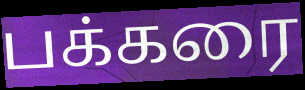
பக்கரை